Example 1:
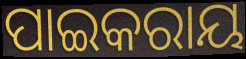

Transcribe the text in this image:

ପାଇକରାୟ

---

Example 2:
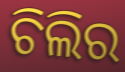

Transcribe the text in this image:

ଚିଲିର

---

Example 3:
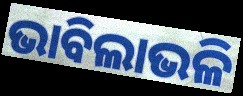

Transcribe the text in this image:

ଭାବିଲାଭଳି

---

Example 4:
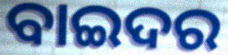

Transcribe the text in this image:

ବାଇଦର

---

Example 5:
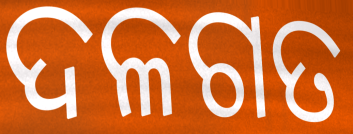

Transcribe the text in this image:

ଦଳଗତ